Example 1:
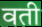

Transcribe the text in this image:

वती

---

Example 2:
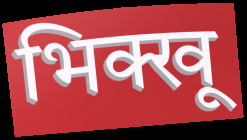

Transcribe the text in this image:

भिक्खू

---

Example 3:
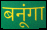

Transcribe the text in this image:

बनूंगा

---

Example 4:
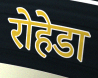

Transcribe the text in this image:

रोहेडा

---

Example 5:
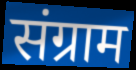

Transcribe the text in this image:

संग्राम